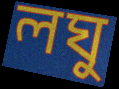
লঘু